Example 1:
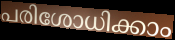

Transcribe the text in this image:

പരിശോധിക്കാം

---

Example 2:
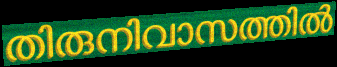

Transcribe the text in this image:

തിരുനിവാസത്തിൽ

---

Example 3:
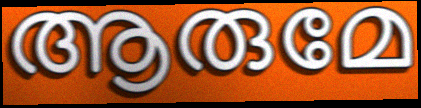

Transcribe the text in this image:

ആരുമേ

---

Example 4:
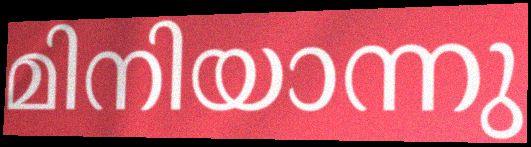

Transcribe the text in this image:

മിനിയാന്നു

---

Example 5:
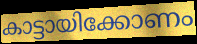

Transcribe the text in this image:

കാട്ടായിക്കോണം